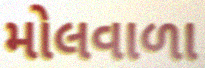
મોલવાળા